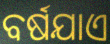
ବର୍ଷଯାଏ